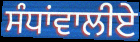
ਸੰਧਾਂਵਾਲੀਏ